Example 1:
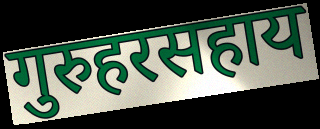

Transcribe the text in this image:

गुरुहरसहाय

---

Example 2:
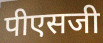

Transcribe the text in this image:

पीएसजी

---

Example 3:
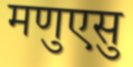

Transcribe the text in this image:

मणुएसु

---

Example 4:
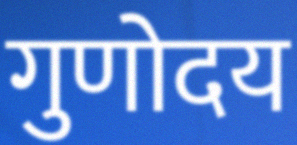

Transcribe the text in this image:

गुणोदय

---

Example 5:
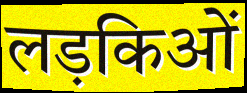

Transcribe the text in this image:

लड़किओं